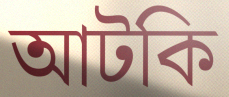
আটকি